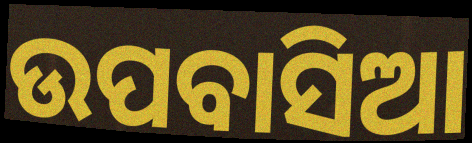
ଉପବାସିଆ